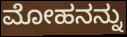
ಮೋಹನನ್ನು